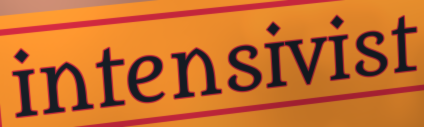
intensivist